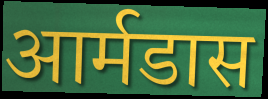
आर्मडास